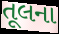
તૂલના